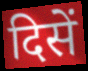
दिसें